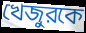
খেজুরকে